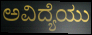
ಅವಿದ್ಯೆಯು